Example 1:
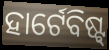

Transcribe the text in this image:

ହାର୍ଟେବିଷ୍ଟ୍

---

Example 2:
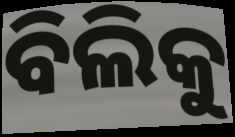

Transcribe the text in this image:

ବିଲିକୁ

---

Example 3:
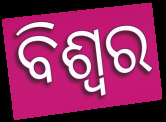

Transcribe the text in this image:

ବିଶ୍ଵର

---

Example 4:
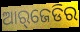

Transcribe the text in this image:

ଆର୍‌ଜେଡିର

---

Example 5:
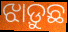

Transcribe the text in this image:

ଝାଡ଼ୁଛ